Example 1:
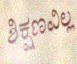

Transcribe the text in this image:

ಶಿಕ್ಷಣವಿಲ್ಲ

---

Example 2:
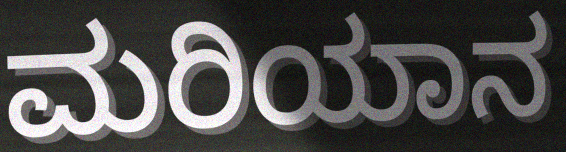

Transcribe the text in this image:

ಮರಿಯಾನ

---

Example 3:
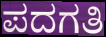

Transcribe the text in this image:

ಪದಗತಿ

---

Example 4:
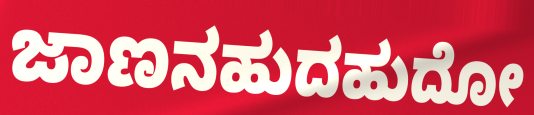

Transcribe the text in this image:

ಜಾಣನಹುದಹುದೋ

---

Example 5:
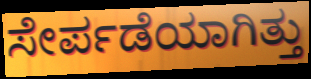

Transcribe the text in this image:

ಸೇರ್ಪಡೆಯಾಗಿತ್ತು